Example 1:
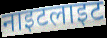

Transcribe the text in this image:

नाइटलाइट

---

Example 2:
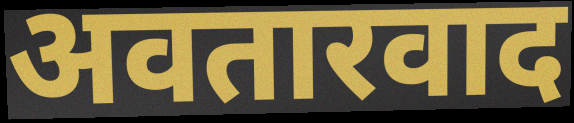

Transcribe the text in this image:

अवतारवाद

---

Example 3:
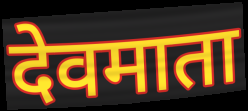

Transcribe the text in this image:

देवमाता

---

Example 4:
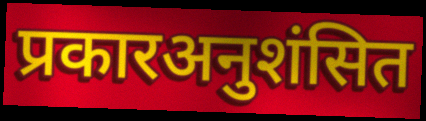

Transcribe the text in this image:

प्रकारअनुशंसित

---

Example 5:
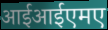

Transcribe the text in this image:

आईआईएमए